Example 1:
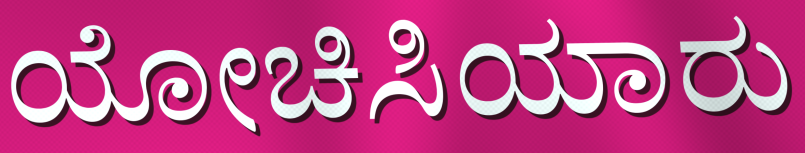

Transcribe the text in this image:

ಯೋಚಿಸಿಯಾರು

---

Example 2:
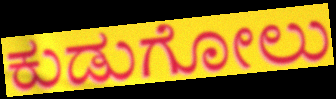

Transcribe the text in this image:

ಕುಡುಗೋಲು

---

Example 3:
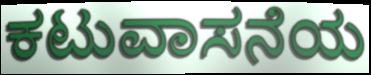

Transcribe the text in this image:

ಕಟುವಾಸನೆಯ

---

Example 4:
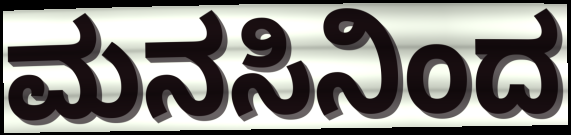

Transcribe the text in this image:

ಮನಸಿನಿಂದ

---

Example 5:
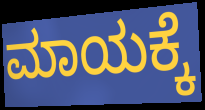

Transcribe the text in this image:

ಮಾಯಕ್ಕೆ